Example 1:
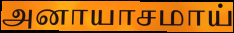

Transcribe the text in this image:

அனாயாசமாய்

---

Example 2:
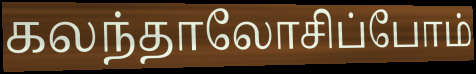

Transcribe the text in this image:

கலந்தாலோசிப்போம்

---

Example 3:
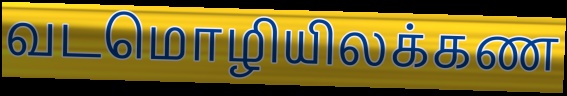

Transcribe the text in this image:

வடமொழியிலக்கண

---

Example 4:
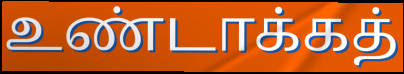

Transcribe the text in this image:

உண்டாக்கத்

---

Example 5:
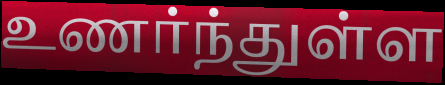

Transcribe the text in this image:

உணர்ந்துள்ள